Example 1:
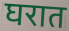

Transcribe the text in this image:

घरात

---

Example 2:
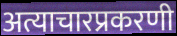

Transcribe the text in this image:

अत्याचारप्रकरणी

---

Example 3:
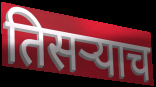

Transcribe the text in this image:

तिसऱ्याच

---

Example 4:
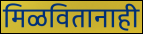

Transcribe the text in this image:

मिळवितानाही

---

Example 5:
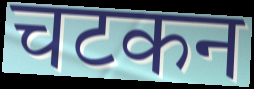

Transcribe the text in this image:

चटकन